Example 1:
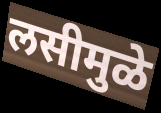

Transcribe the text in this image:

लसीमुळे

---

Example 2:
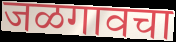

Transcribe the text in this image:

जळगावचा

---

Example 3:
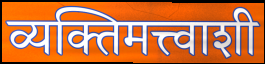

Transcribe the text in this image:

व्यक्तिमत्त्वाशी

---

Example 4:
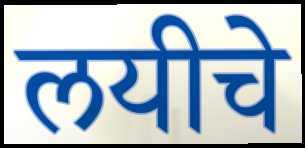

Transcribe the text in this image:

लयीचे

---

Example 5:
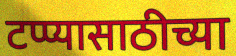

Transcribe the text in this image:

टप्प्यासाठीच्या